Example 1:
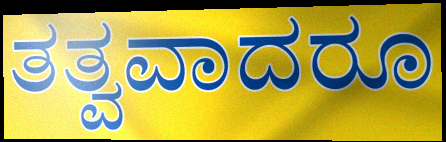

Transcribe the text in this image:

ತತ್ವವಾದರೂ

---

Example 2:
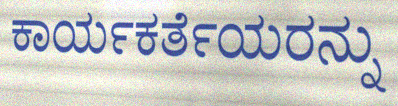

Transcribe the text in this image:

ಕಾರ್ಯಕರ್ತೆಯರನ್ನು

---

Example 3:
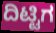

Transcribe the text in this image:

ದಿಟ್ಟಿಗ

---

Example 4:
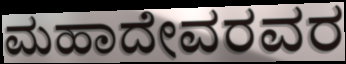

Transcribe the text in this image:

ಮಹಾದೇವರವರ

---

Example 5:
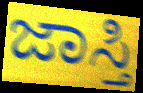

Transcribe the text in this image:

ಜಾಸ್ತಿ